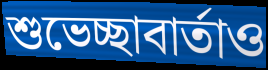
শুভেচ্ছাবার্তাও